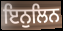
ਇਨੁਲਿਨ